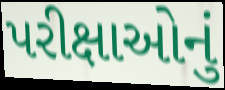
પરીક્ષાઓનું